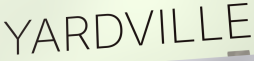
YARDVILLE